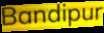
Bandipur